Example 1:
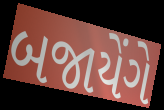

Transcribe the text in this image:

બજાયેંગે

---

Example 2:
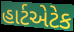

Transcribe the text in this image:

હાર્ટએટેક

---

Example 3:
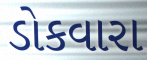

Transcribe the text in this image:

ડોકવારા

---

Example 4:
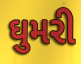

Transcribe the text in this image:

ઘુમરી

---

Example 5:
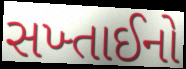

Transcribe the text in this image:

સખ્તાઈનો